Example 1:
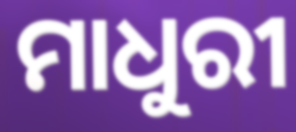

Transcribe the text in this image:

ମାଧୁରୀ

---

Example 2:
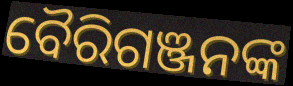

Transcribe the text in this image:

ବୈରିଗଞ୍ଜନଙ୍କ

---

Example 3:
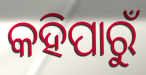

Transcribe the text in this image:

କହିପାରୁଁ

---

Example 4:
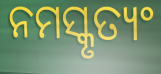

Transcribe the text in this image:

ନମସ୍କୃତ୍ୟଂ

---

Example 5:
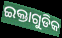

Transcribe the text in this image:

ଇକ୍ତାଗୁଡିକ